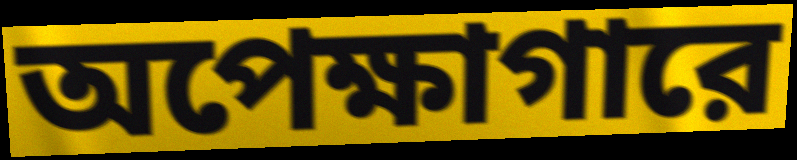
অপেক্ষাগারে